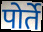
पोर्ते